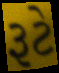
રૂટે